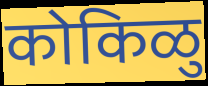
कोकिळु